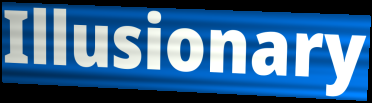
Illusionary